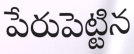
పేరుపెట్టిన